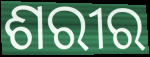
ଶରୀର